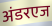
अंडरएज